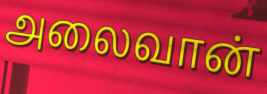
அலைவான்